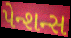
પેન્શન્સ